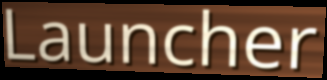
Launcher